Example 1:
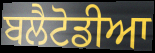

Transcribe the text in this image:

ਬਲੈਟੋਡੀਆ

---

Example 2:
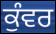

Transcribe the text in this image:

ਕੁੰਵਰ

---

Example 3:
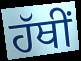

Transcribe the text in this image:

ਹੱਥੀਂ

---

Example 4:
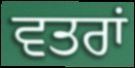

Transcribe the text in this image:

ਵਤਰਾਂ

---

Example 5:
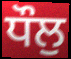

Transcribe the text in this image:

ਧੌਲੁ